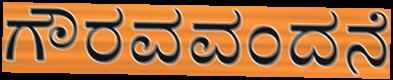
ಗೌರವವಂದನೆ